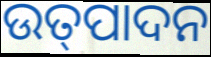
ଉତ୍‌ପାଦନ